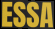
ESSA